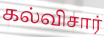
கல்விசார்